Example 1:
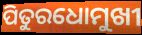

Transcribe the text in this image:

ପିତୁରଧୋମୁଖୀ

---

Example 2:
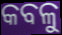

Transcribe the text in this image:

କବଳୁ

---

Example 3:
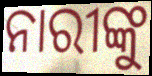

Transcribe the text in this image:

ନାରୀଙ୍କୁ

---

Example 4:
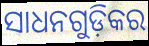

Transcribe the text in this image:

ସାଧନଗୁଡ଼ିକର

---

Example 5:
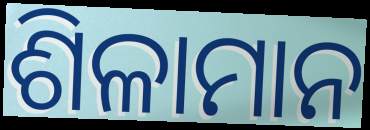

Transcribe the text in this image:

ଶିଳାମାନ